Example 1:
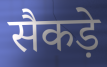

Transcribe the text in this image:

सैकड़े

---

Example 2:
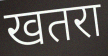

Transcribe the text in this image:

खतरा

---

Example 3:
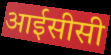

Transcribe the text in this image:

आईसीसी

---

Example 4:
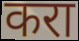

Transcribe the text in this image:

करा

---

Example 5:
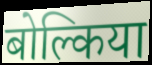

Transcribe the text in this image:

बोल्किया